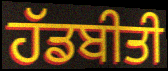
ਹੱਡਬੀਤੀ